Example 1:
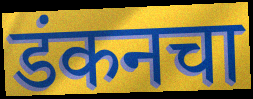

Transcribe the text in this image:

डंकनचा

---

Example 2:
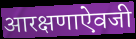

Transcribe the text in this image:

आरक्षणाऐवजी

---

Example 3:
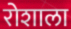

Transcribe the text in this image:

रोशाला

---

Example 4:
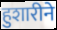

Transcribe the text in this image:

हुशारीने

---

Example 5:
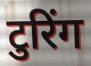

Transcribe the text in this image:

टुरिंग